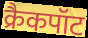
क्रैकपॉट